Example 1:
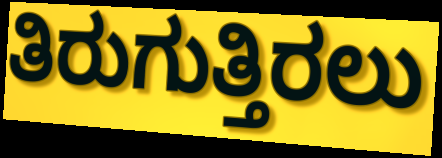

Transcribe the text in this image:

ತಿರುಗುತ್ತಿರಲು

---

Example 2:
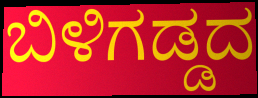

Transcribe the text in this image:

ಬಿಳಿಗಡ್ಡದ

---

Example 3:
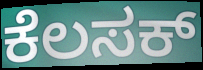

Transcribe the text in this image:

ಕೆಲಸಕ್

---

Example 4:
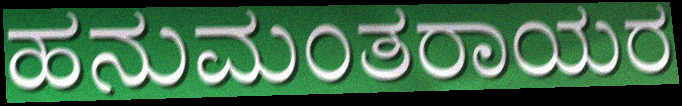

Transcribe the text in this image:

ಹನುಮಂತರಾಯರ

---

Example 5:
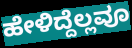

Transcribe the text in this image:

ಹೇಳಿದ್ದೆಲ್ಲವೂ